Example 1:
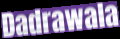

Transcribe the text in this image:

Dadrawala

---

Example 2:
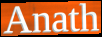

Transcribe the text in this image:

Anath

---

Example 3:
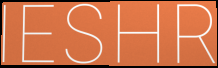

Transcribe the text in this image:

IESHR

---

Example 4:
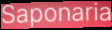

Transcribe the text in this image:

Saponaria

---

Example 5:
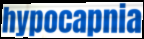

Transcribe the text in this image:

hypocapnia